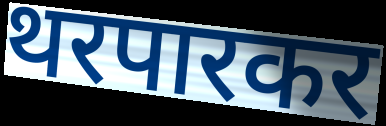
थरपारकर